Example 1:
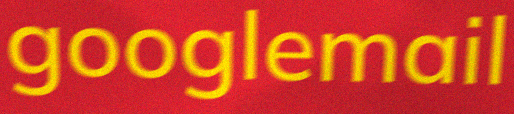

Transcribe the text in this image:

googlemail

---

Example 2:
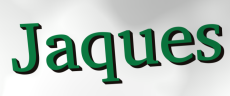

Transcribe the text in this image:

Jaques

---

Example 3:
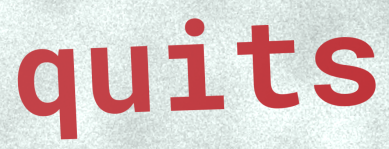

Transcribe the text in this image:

quits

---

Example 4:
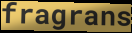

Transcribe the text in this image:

fragrans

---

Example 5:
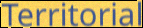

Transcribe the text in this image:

Territorial